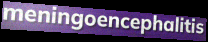
meningoencephalitis